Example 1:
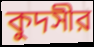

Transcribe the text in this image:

কুদসীর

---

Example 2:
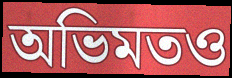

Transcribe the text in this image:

অভিমতও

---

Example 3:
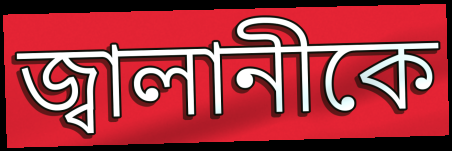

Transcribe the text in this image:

জ্বালানীকে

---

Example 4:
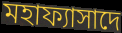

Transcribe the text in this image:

মহাফ্যাসাদে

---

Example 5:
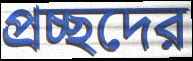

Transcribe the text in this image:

প্রচ্ছদের